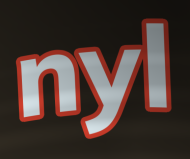
nyl